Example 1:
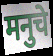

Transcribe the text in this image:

मनुचे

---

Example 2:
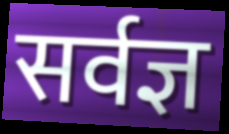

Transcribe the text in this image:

सर्वज्ञ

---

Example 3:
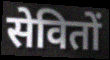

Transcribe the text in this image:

सेवितों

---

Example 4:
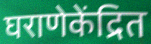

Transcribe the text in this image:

घराणेकेंद्रित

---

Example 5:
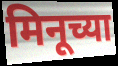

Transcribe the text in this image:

मिनूच्या